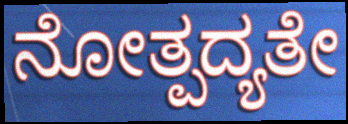
ನೋತ್ಪದ್ಯತೇ